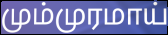
மும்முரமாய்